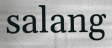
salang